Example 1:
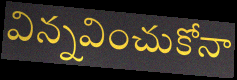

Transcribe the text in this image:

విన్నవించుకోనా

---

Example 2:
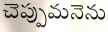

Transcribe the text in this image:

చెప్పుమనెను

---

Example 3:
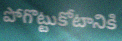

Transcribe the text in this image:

పోగొట్టుకోటానికి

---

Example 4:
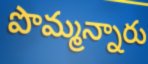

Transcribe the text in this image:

పొమ్మన్నారు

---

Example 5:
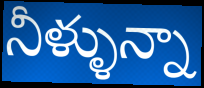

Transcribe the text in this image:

నీళ్ళున్నా